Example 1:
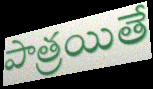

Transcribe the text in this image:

పాత్రయితే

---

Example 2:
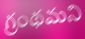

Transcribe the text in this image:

గ్రంథమని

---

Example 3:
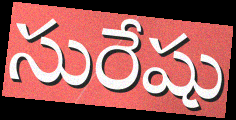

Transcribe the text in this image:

సురేషు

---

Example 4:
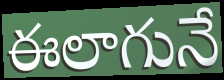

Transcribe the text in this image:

ఈలాగునే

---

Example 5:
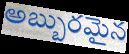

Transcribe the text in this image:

అబ్బురమైన